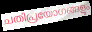
ചതിപ്രയോഗങ്ങളും